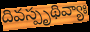
దివస్పృథివ్యాః